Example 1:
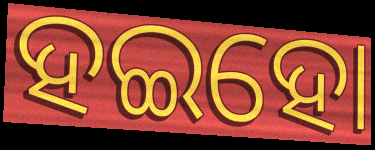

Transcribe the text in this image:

ହଇହୋ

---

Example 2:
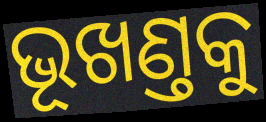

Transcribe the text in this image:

ଭୂଖଣ୍ତକୁ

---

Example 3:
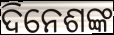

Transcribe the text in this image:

ଦିନେଶଙ୍କ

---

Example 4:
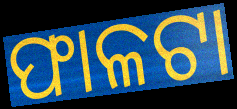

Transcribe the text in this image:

ଫାଳଟା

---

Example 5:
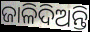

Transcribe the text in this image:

ଜାଳିଦିଅନ୍ତି